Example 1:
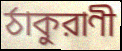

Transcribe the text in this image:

ঠাকুরাণী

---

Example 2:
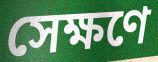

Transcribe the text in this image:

সেক্ষণে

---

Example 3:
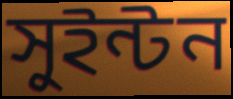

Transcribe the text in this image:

সুইন্টন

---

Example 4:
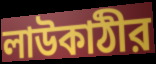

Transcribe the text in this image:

লাউকাঠীর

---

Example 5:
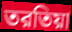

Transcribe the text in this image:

তরতিয়া